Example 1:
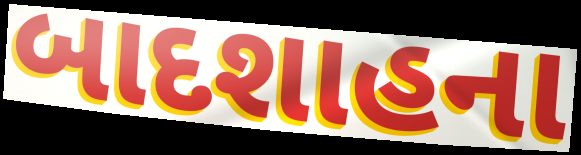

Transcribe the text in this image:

બાદશાહના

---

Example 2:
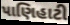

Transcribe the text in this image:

પાણિહાટી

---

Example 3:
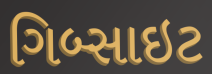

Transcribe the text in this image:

ગિબ્સાઇટ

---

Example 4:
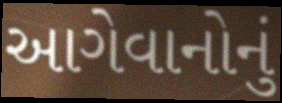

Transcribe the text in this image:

આગેવાનોનું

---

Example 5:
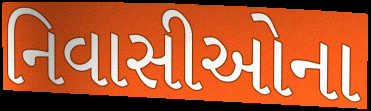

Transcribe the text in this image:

નિવાસીઓના